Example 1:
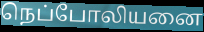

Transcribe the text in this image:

நெப்போலியனை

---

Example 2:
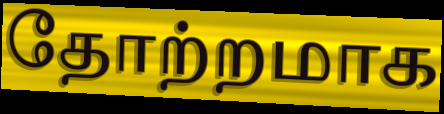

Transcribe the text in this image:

தோற்றமாக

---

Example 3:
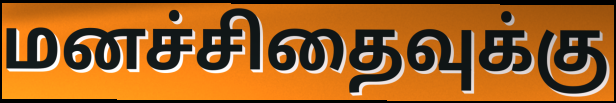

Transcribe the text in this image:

மனச்சிதைவுக்கு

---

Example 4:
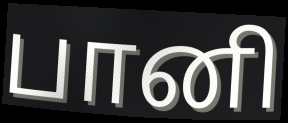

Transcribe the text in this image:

பானி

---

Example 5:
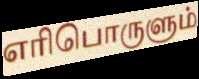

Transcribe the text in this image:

எரிபொருளும்